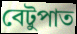
বেটুপাত